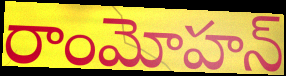
రాంమోహన్